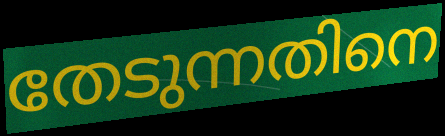
തേടുന്നതിനെ